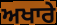
ਅਖਾਰੇ